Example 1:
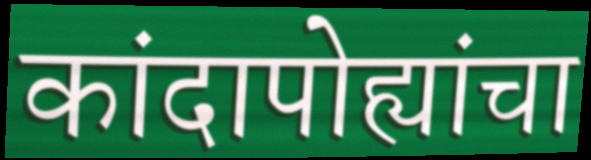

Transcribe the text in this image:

कांदापोह्यांचा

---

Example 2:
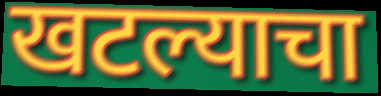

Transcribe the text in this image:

खटल्याचा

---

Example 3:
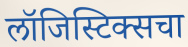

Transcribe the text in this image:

लॉजिस्टिक्सचा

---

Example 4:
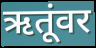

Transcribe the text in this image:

ऋतूंवर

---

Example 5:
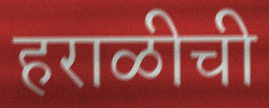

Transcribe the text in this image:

हराळीची